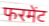
फरमेंट